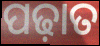
ପଢ଼ାତ